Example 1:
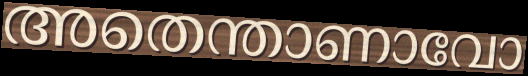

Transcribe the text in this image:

അതെന്താണാവോ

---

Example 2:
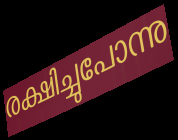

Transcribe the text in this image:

രക്ഷിച്ചുപോന്നു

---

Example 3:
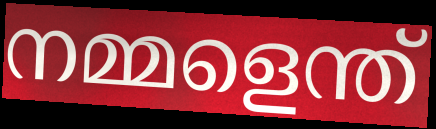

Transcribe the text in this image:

നമ്മളെന്ത്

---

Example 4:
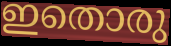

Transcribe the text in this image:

ഇതൊരു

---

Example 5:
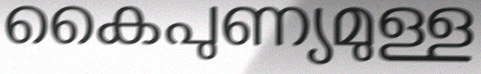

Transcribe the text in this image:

കൈപുണ്യമുള്ള